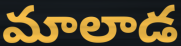
మాలాడ